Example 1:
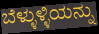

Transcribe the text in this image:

ಬೆಳ್ಳುಳ್ಳಿಯನ್ನು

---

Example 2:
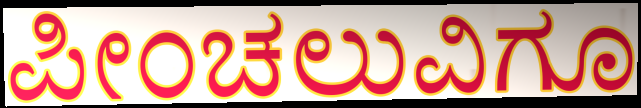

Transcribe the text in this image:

ಪೀಂಚಲುವಿಗೂ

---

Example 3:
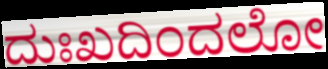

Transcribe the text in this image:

ದುಃಖದಿಂದಲೋ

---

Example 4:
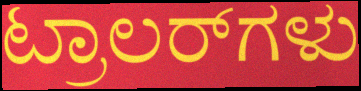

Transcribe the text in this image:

ಟ್ರಾಲರ್‌ಗಳು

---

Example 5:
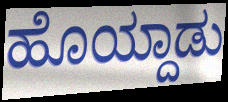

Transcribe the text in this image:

ಹೊಯ್ದಾಡು